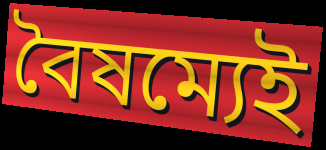
বৈষম্যেই